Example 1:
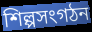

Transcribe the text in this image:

শিল্পসংগঠন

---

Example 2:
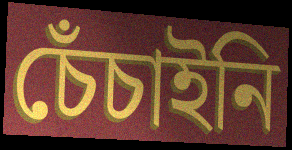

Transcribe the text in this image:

চেঁচাইনি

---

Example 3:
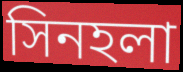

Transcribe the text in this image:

সিনহলা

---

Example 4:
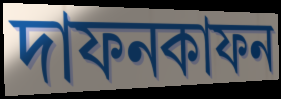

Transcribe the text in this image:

দাফনকাফন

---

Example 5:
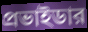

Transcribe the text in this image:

প্রভাইডার